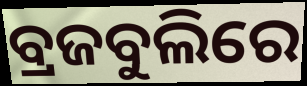
ବ୍ରଜବୁଲିରେ